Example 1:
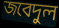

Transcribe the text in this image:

জবেদুল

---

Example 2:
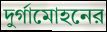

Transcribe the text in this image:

দুর্গামোহনের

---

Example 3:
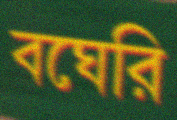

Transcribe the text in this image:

বঘেরি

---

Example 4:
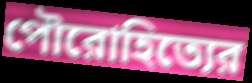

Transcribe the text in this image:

পৌরোহিত্যের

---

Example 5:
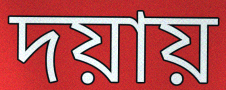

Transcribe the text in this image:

দয়ায়